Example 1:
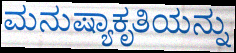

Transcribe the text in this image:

ಮನುಷ್ಯಾಕೃತಿಯನ್ನು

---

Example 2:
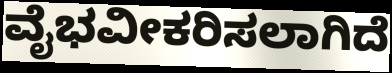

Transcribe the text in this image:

ವೈಭವೀಕರಿಸಲಾಗಿದೆ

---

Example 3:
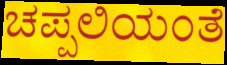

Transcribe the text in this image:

ಚಪ್ಪಲಿಯಂತೆ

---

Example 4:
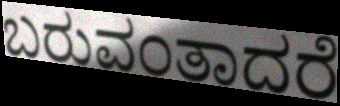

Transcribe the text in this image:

ಬರುವಂತಾದರೆ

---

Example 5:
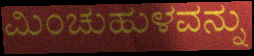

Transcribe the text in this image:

ಮಿಂಚುಹುಳವನ್ನು